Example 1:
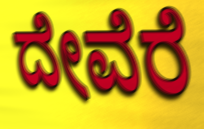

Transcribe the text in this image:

ದೇವೆರೆ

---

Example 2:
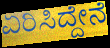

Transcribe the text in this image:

ಏರಿಸಿದ್ದೇನೆ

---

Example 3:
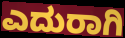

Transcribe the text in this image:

ಎದುರಾಗಿ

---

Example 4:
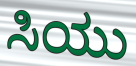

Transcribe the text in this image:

ಸಿಯು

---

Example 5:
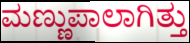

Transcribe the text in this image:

ಮಣ್ಣುಪಾಲಾಗಿತ್ತು